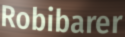
Robibarer